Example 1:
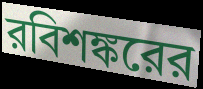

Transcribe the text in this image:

রবিশঙ্করের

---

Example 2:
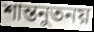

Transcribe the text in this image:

শান্তনুতনয়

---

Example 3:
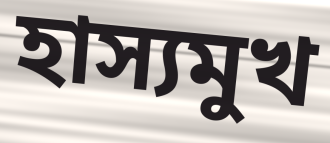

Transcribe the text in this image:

হাস্যমুখ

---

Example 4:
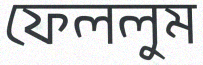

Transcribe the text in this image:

ফেললুম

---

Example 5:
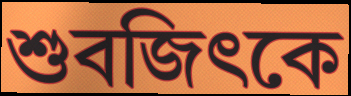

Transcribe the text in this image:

শুবজিৎকে